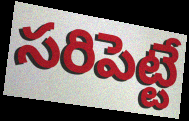
సరిపెట్టే